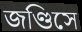
জণ্ডিসে